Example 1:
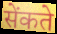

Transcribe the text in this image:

सेंकते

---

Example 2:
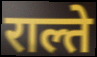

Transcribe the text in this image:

राल्ते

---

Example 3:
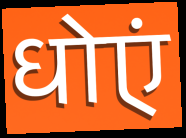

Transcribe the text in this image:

धोएं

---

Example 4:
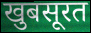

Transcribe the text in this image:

खुबसूरत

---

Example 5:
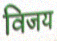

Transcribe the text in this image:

विजय